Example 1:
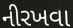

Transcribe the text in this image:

નીરખવા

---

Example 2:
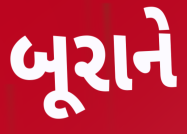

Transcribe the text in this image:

બૂરાને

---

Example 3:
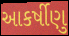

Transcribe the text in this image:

આકર્ષીણુ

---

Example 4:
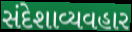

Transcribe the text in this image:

સંદેશાવ્યવહાર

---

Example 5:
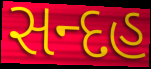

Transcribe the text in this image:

સન્દહ